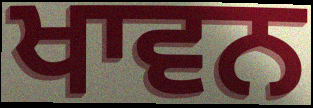
ਖਾਵਨ